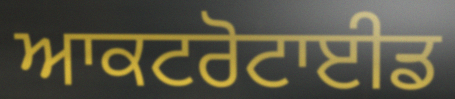
ਆਕਟਰੋਟਾਈਡ